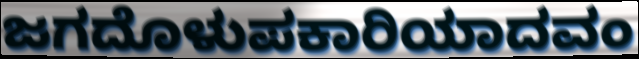
ಜಗದೊಳುಪಕಾರಿಯಾದವಂ